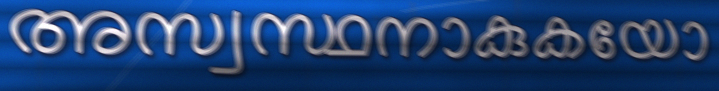
അസ്വസ്ഥനാകുകയോ